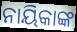
ନାୟିକାଙ୍କ